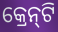
କ୍ରେନ୍‍ଟି